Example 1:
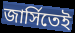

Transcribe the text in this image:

জার্সিতেই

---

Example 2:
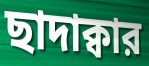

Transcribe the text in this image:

ছাদাক্বার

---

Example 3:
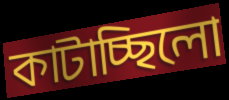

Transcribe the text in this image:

কাটাচ্ছিলো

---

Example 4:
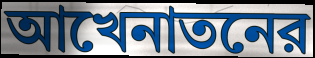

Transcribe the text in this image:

আখেনাতনের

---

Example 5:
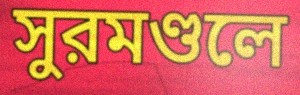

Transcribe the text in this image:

সুরমণ্ডলে